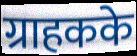
ग्राहकके